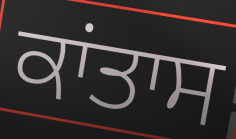
ਕਾਂਤਾਸ